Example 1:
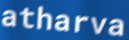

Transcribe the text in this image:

atharva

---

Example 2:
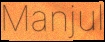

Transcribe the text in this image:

Manjul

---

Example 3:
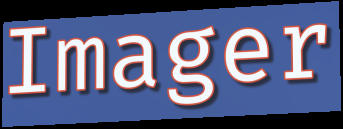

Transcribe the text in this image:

Imager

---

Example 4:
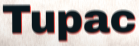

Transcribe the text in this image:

Tupac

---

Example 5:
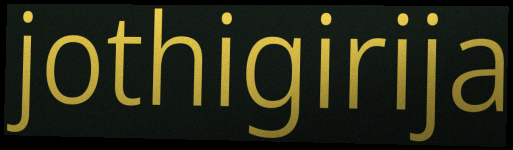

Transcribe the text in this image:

jothigirija